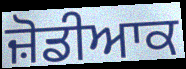
ਜ਼ੋਡੀਆਕ